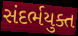
સંદર્ભયુક્ત